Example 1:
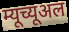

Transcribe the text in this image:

म्यूच्यूअल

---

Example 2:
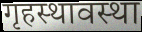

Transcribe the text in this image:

गृहस्थावस्था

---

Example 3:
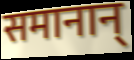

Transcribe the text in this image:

समानान्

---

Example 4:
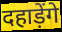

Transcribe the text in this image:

दहाड़ेंगे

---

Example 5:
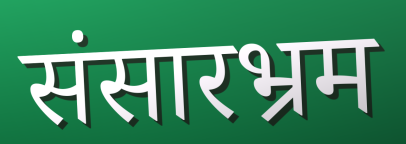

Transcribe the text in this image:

संसारभ्रम